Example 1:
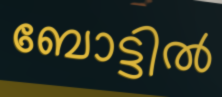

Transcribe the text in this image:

ബോട്ടിൽ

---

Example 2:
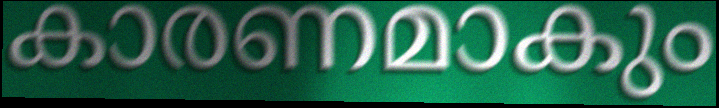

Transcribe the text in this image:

കാരണമാകും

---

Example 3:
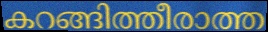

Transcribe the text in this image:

കറങ്ങിത്തീരാത്ത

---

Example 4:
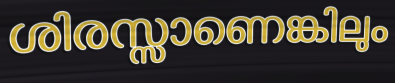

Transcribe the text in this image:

ശിരസ്സാണെങ്കിലും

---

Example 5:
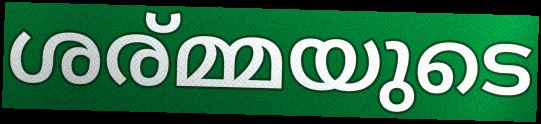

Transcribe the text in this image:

ശര്മ്മയുടെ